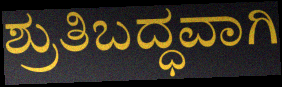
ಶ್ರುತಿಬದ್ಧವಾಗಿ